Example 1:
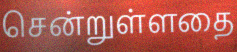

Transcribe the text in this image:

சென்றுள்ளதை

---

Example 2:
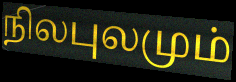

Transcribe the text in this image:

நிலபுலமும்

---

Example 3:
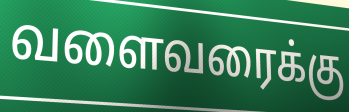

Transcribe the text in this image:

வளைவரைக்கு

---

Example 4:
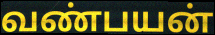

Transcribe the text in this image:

வண்பயன்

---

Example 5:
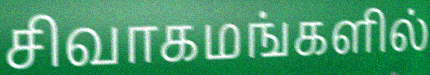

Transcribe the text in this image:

சிவாகமங்களில்